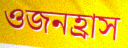
ওজনহ্রাস